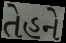
તેહને